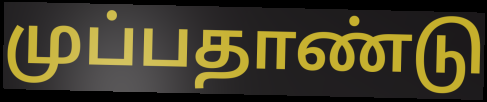
முப்பதாண்டு